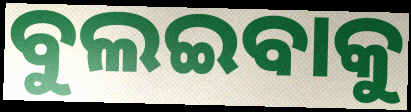
ବୁଲଇବାକୁ